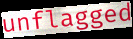
unflagged